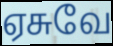
ஏசுவே